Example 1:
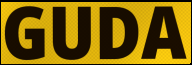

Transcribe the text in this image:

GUDA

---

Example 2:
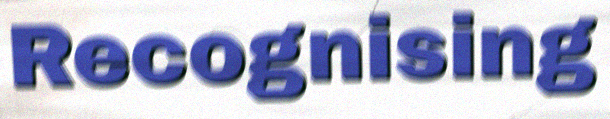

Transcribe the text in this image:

Recognising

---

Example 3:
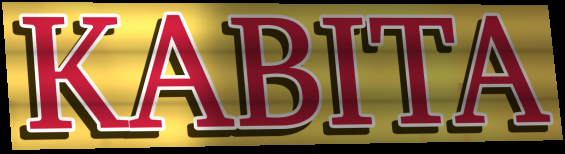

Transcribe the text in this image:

KABITA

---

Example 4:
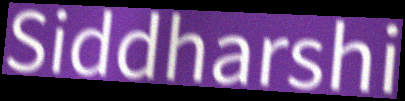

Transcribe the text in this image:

Siddharshi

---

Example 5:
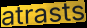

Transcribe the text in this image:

atrasts